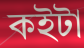
কইটা